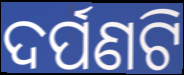
ଦର୍ପଣଟି